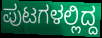
ಪುಟಗಳಲ್ಲಿದ್ದ